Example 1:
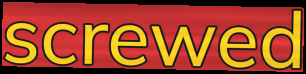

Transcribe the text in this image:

screwed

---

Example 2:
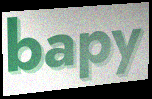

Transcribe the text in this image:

bapy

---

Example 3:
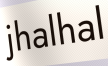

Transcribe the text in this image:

jhalhal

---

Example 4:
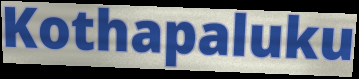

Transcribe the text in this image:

Kothapaluku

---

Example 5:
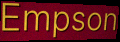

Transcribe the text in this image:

Empson